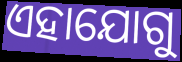
ଏହାଯୋଗୁ